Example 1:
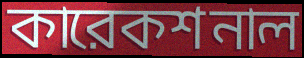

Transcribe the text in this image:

কারেকশনাল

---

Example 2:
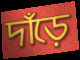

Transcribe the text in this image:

দাঁড়ে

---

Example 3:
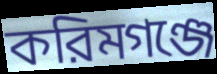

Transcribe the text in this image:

করিমগঞ্জে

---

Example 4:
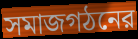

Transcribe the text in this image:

সমাজগঠনের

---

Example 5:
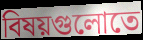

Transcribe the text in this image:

বিষয়গুলোতে